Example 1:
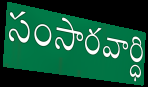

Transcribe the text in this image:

సంసారవార్ధి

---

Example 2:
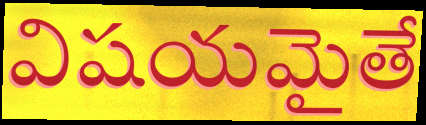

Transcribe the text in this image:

విషయమైతే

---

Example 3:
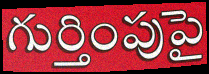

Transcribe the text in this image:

గుర్తింపుపై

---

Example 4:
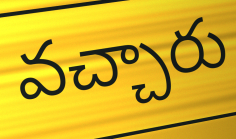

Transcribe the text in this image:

వచ్చారు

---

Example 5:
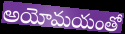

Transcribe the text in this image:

అయోమయంతో